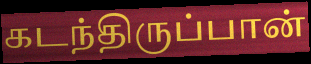
கடந்திருப்பான்